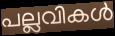
പല്ലവികൾ